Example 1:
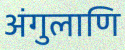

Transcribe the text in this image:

अंगुलाणि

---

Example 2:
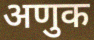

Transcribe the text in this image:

अणुक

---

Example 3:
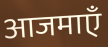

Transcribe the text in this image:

आजमाएँ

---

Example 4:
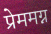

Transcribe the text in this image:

प्रेममग्न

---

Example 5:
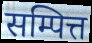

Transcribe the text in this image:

सम्पित्त